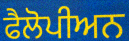
ਫੈਲੋਪੀਅਨ